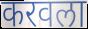
करवला